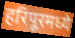
हरिपूरमध्ये